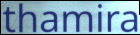
thamira